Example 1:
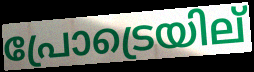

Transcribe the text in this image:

പ്രോട്രെയില്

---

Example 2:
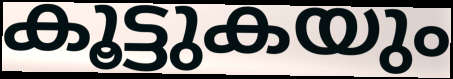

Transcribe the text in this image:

കൂട്ടുകയും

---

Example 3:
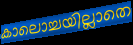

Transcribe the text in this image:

കാലൊച്ചയില്ലാതെ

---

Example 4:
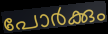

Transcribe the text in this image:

പോർക്കും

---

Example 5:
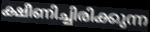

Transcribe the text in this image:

ക്ഷീണിച്ചിരിക്കുന്ന